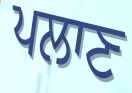
ਪਲਾਣ